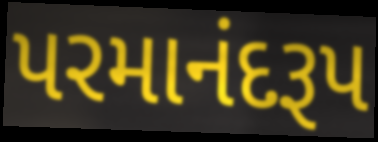
પરમાનંદરૂપ